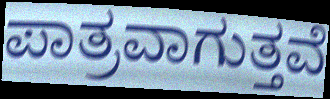
ಪಾತ್ರವಾಗುತ್ತವೆ